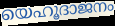
യെഹൂദാജനം